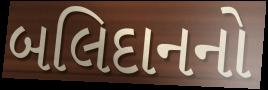
બલિદાનનો